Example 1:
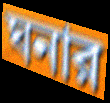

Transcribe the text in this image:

ঘনার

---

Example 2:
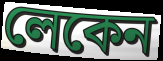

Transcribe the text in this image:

লেকেন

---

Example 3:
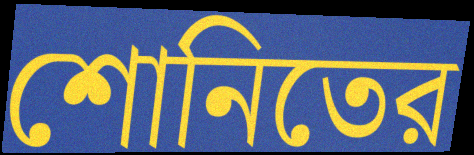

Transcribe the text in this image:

শোনিতের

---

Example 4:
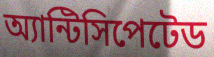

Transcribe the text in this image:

অ্যান্টিসিপেটেড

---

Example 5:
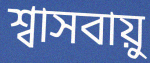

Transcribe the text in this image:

শ্বাসবায়ু